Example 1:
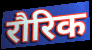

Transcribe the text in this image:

रौरिक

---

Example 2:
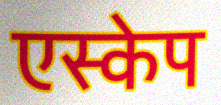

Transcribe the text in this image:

एस्केप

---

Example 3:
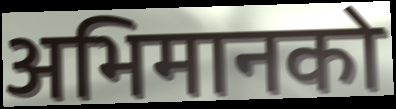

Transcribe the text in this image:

अभिमानको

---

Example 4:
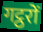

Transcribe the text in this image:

गट्ठरों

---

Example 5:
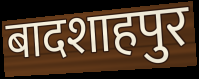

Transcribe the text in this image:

बादशाहपुर